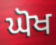
ਘੋਖ